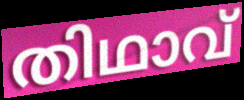
തിഥാവ്